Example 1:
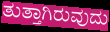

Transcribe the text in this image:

ತುತ್ತಾಗಿರುವುದು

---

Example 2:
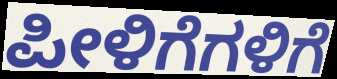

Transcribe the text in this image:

ಪೀಳಿಗೆಗಳಿಗೆ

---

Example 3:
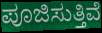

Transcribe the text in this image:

ಪೂಜಿಸುತ್ತಿವೆ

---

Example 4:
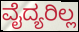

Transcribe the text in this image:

ವೈದ್ಯರಿಲ್ಲ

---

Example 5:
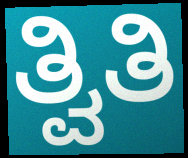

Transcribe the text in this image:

ತ್ವಿತಿ